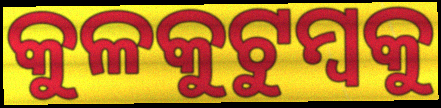
କୁଳକୁଟୁମ୍ବକୁ